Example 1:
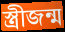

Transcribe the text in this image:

স্ত্রীজন্ম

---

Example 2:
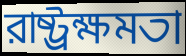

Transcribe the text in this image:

রাষ্ট্রক্ষমতা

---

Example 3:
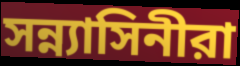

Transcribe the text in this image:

সন্ন্যাসিনীরা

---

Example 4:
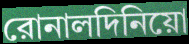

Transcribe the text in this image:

রোনালদিনিয়ো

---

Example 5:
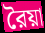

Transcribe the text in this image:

রৈয়া